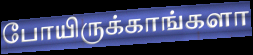
போயிருக்காங்களா